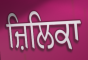
ਜ਼ਿਲਿਕਾ